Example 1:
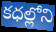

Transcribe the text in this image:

కధల్లోని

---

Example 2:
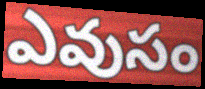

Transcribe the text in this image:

ఎవుసం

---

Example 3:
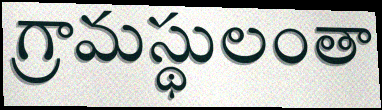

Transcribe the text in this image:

గ్రామస్థులంతా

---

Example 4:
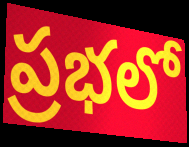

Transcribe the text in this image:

ప్రభలో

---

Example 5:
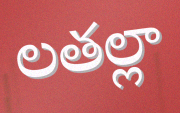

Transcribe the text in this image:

లతల్లా